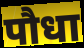
पौधा